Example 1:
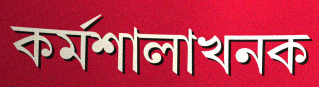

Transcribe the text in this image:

কৰ্মশালাখনক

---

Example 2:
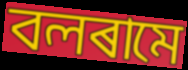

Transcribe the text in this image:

বলৰামে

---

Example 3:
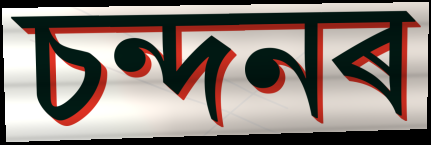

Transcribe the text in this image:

চন্দনৰ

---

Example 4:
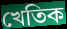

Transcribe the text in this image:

খেতিক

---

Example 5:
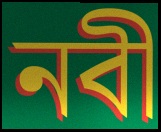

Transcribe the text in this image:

নবী